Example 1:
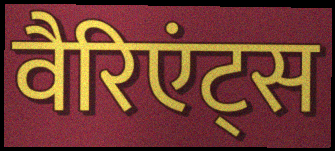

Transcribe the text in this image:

वैरिएंट्स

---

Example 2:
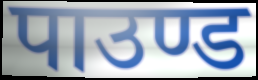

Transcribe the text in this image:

पाउण्‍ड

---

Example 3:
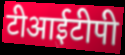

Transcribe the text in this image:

टीआईटीपी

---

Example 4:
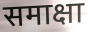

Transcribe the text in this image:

समाक्षा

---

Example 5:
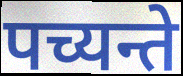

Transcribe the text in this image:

पच्यन्ते